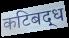
कटिबद्ध